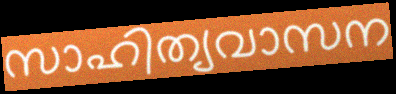
സാഹിത്യവാസന